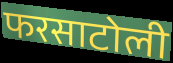
फरसाटोली